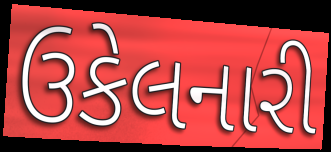
ઉકેલનારી